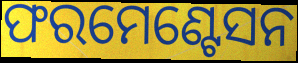
ଫରମେଣ୍ଟେସନ